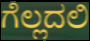
ಗೆಲ್ಲದಲಿ